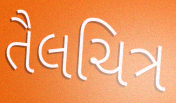
તૈલચિત્ર